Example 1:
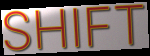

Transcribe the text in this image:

SHIFT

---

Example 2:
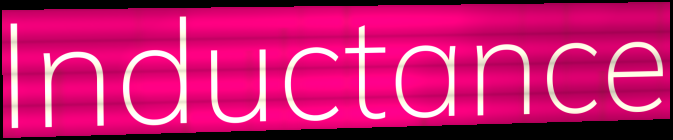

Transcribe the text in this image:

Inductance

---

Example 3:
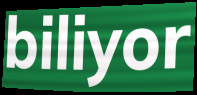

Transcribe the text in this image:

biliyor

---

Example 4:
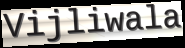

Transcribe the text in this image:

Vijliwala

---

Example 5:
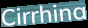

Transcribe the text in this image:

Cirrhina